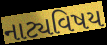
નાટ્યવિષય